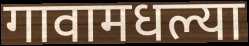
गावामधल्या